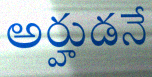
అర్హుడనే